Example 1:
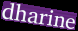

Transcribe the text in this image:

dharine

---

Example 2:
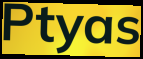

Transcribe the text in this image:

Ptyas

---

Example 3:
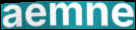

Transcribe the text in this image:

aemne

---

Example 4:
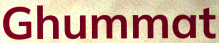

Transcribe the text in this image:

Ghummat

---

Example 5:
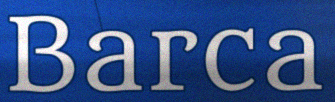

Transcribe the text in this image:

Barca